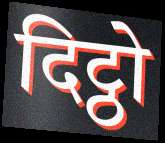
दिट्ठो